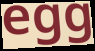
egg